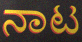
ನಾಟ